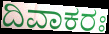
ದಿವಾಕರಃ